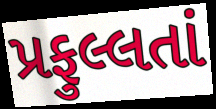
પ્રફુલ્લતાં